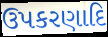
ઉપકરણાદિ